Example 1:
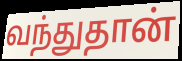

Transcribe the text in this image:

வந்துதான்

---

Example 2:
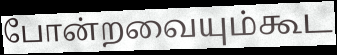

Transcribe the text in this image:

போன்றவையும்கூட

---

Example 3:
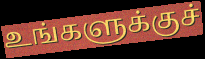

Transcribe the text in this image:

உங்களுக்குச்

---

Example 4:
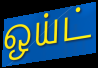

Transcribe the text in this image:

ஒய்ட்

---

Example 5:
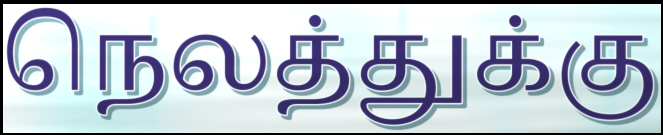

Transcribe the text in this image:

நெலத்துக்கு